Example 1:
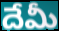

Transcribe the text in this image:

దేమీ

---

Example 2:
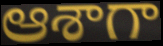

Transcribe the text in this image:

ఆశాగా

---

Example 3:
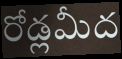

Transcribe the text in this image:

రోడ్లమీద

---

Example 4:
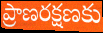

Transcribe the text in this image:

ప్రాణరక్షణకు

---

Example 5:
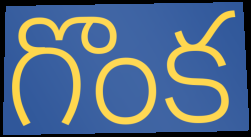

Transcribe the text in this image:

గొంక